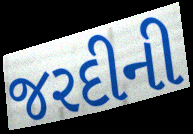
જરદીની